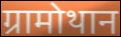
ग्रामोथान